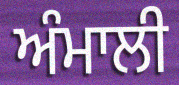
ਅੰਮਾਲੀ